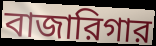
বাজারিগার